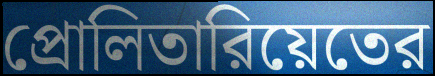
প্রোলিতারিয়েতের